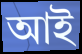
আই